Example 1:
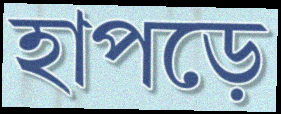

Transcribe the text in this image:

হাপড়ে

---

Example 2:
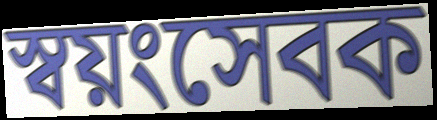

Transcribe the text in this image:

স্বয়ংসেবক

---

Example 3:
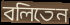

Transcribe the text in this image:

বলিতেন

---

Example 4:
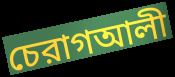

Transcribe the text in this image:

চেরাগআলী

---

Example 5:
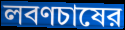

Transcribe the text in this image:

লবণচাষের